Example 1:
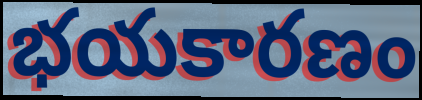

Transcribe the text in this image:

భయకారణం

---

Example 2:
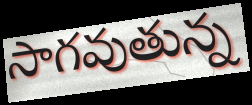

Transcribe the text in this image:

సాగవుతున్న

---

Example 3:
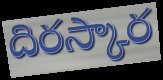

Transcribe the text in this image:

దిరస్కార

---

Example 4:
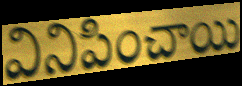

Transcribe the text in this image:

వినిపించాయి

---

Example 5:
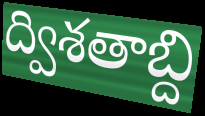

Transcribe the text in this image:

ద్విశతాబ్ది